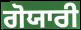
ਗੋਯਾਰੀ